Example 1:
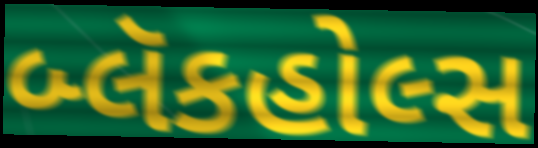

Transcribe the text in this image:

બ્લૅકહોલ્સ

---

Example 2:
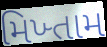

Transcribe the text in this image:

મિખ્તામ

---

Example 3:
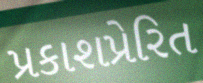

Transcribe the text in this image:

પ્રકાશપ્રેરિત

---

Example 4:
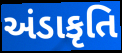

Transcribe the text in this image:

અંડાકૃતિ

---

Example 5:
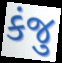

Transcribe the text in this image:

કંજુ